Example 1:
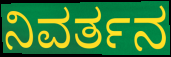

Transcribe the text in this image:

ನಿವರ್ತನ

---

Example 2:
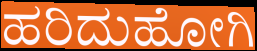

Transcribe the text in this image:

ಹರಿದುಹೋಗಿ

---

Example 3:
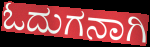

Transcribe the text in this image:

ಓದುಗನಾಗಿ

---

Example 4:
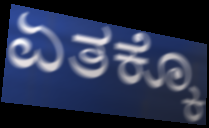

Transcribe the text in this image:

ಏತಕ್ಕೊ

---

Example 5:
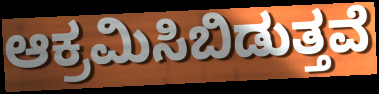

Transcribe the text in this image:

ಆಕ್ರಮಿಸಿಬಿಡುತ್ತವೆ